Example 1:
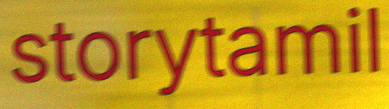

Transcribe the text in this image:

storytamil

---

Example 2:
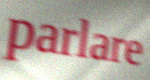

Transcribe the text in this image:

parlare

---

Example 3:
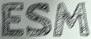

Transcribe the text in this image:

ESM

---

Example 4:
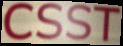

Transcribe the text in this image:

CSST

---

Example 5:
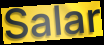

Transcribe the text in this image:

Salar